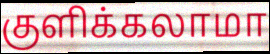
குளிக்கலாமா